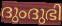
ദുംദുഭി